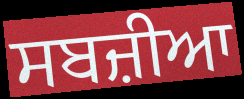
ਸਬਜ਼ੀਆ